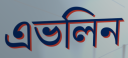
এভলিন